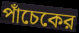
পাঁচেকের